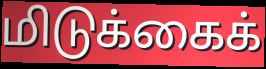
மிடுக்கைக்